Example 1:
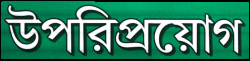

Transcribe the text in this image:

উপরিপ্রয়োগ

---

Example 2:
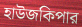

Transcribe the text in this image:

হাউজকিপার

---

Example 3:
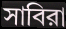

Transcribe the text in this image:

সাবিরা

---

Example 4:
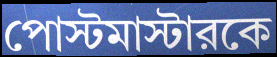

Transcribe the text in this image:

পোস্টমাস্টারকে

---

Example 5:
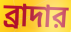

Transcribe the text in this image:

ব্রাদার